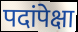
पदांपेक्षा